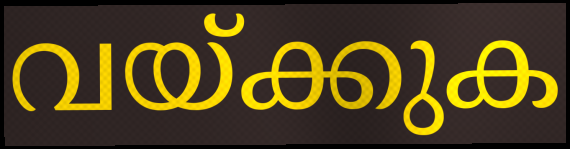
വയ്ക്കുക